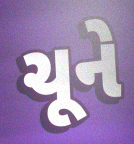
ચૂને